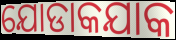
ଯୋଡାକଯାକ